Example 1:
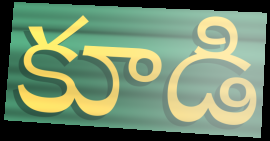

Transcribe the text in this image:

కూడి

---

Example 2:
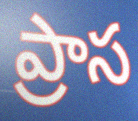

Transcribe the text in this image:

ప్రాస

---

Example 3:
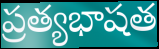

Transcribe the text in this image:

ప్రత్యభాషత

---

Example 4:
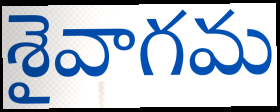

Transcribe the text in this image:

శైవాగమ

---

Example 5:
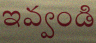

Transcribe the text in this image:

ఇవ్వండి